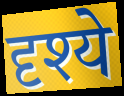
दृश्‍ये